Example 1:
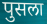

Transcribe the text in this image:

पुसला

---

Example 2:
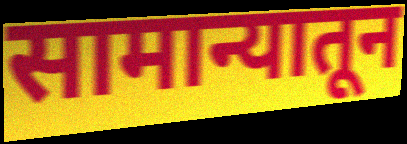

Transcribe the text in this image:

सामान्यातून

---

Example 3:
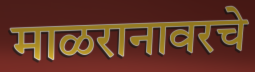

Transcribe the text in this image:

माळरानावरचे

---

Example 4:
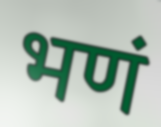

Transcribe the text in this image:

भणं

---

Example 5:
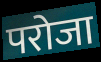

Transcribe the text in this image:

परोजा